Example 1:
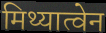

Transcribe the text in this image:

मिथ्यात्वेन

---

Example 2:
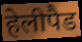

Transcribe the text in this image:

हेलीपैड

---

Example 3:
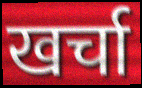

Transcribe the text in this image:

खर्चा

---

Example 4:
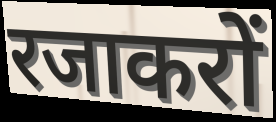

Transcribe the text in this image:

रजाकरों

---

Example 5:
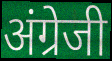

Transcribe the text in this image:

अंग्रेजी